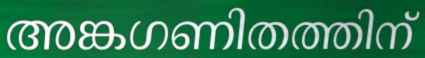
അങ്കഗണിതത്തിന്